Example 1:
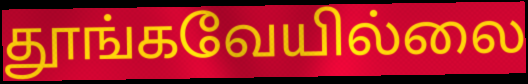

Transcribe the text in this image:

தூங்கவேயில்லை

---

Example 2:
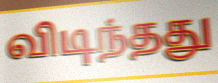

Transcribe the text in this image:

விடிந்தது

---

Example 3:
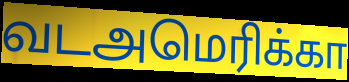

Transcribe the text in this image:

வடஅமெரிக்கா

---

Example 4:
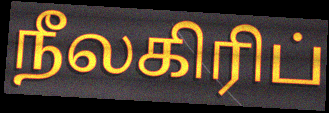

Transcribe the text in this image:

நீலகிரிப்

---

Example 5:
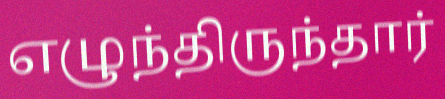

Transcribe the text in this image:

எழுந்திருந்தார்